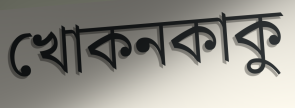
খোকনকাকু